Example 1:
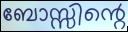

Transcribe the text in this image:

ബോസ്സിന്റെ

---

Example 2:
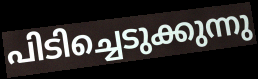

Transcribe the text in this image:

പിടിച്ചെടുക്കുന്നു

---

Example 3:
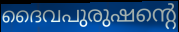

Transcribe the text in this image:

ദൈവപുരുഷന്റെ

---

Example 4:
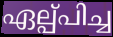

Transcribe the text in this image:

ഏല്പ്പിച്ച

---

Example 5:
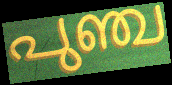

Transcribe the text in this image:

പുഞ്ച